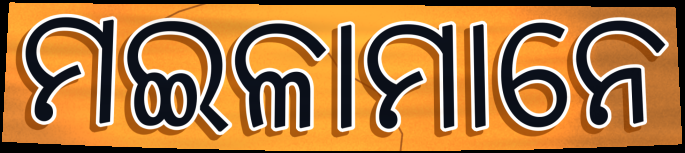
ମଇଳାମାନେ